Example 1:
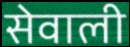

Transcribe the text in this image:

सेवाली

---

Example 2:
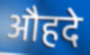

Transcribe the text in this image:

औहदे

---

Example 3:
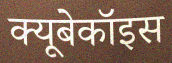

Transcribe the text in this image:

क्यूबेकॉइस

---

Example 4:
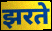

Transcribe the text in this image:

झरते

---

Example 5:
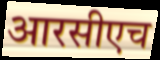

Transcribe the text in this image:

आरसीएच